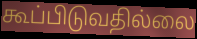
கூப்பிடுவதில்லை